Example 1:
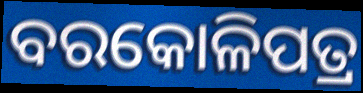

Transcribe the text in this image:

ବରକୋଳିପତ୍ର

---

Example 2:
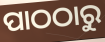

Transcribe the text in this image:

ପାଠଠାରୁ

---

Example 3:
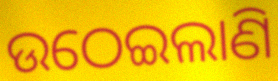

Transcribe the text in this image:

ଉଠେଇଲାଣି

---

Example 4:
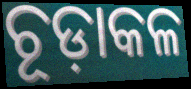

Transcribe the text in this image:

ଚୂଡ଼ାକଳ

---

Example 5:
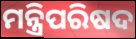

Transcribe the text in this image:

ମନ୍ତ୍ରିପରିଷଦ